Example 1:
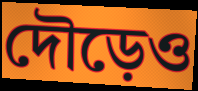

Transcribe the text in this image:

দৌড়েও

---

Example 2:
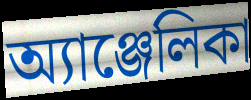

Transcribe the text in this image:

অ্যাঞ্জেলিকা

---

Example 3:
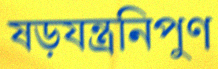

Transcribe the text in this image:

ষড়যন্ত্রনিপুণ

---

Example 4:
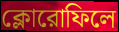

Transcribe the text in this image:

ক্লোরোফিলে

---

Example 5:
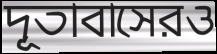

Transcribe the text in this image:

দূতাবাসেরও